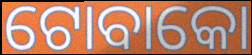
ଟୋବାକୋ